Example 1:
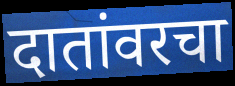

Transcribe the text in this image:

दातांवरचा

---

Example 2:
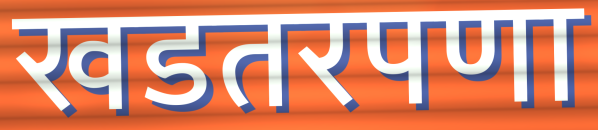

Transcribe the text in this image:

खडतरपणा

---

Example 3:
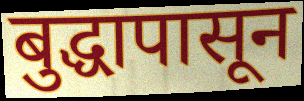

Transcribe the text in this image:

बुद्धापासून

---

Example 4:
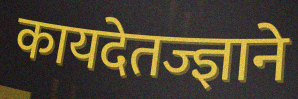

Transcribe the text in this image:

कायदेतज्ज्ञाने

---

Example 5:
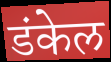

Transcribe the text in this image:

डंकेल